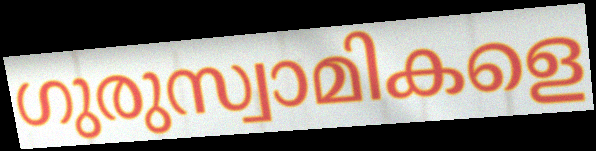
ഗുരുസ്വാമികളെ